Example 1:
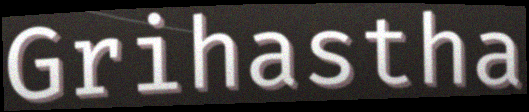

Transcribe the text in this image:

Grihastha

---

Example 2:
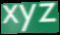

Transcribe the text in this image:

xyz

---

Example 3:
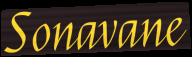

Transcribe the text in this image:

Sonavane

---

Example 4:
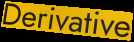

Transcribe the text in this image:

Derivative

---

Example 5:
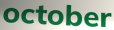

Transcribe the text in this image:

october